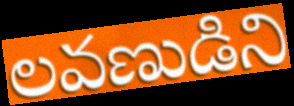
లవణుడిని